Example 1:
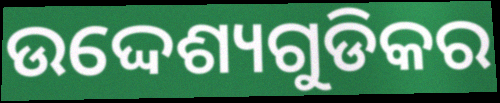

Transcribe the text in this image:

ଉଦ୍ଦେଶ୍ୟଗୁଡିକର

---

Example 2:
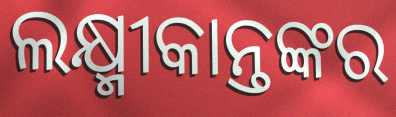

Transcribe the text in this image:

ଲକ୍ଷ୍ମୀକାନ୍ତଙ୍କର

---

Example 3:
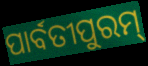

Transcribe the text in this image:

ପାର୍ବତୀପୁରମ୍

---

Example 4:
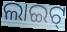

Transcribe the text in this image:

ଲାଇଟ୍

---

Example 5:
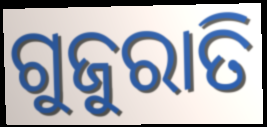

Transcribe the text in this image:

ଗୁଜୁରାତି